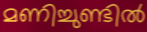
മണിച്ചുണ്ടിൽ